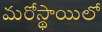
మరోస్థాయిలో